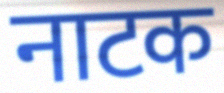
नाटक